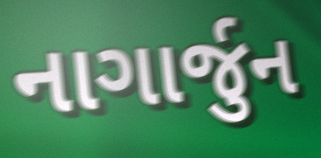
નાગાર્જુન